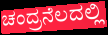
ಚಂದ್ರನೆಲದಲ್ಲಿ